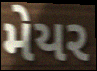
મેયર